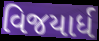
વિજયાર્ધ